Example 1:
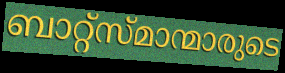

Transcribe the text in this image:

ബാറ്റ്സ്മാന്മാരുടെ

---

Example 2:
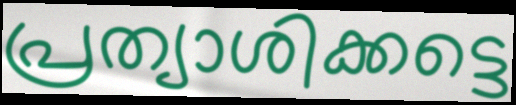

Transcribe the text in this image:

പ്രത്യാശിക്കട്ടെ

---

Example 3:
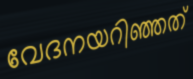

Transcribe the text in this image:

വേദനയറിഞ്ഞത്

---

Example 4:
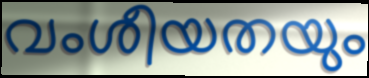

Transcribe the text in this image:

വംശീയതയും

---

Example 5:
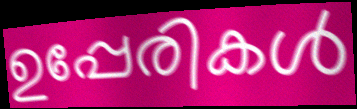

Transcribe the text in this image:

ഉപ്പേരികൾ